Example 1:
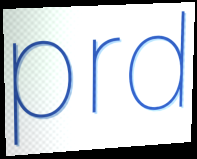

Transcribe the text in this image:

prd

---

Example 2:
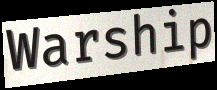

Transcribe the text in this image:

Warship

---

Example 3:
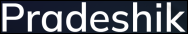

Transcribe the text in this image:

Pradeshik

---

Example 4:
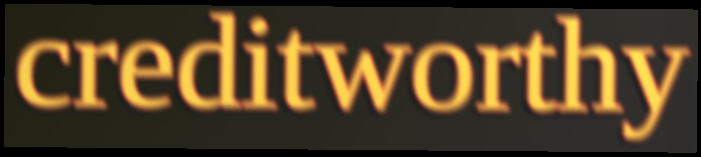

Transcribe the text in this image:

creditworthy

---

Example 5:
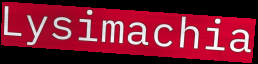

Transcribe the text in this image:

Lysimachia